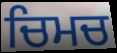
ਚਿਮਚ